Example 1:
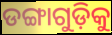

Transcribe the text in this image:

ଡଙ୍ଗାଗୁଡ଼ିକୁ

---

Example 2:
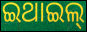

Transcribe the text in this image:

ଇଥାଇଲ୍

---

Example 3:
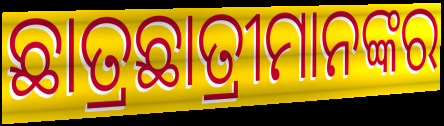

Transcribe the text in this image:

ଛାତ୍ରଛାତ୍ରୀମାନଙ୍କର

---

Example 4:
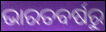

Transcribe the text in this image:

ଭାରତବର୍ଷରୁ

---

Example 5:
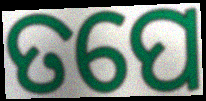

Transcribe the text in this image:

ତପେ